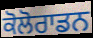
ਕੋਲੋਰਾਡਨ